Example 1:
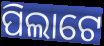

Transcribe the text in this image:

ପିଲାଟେ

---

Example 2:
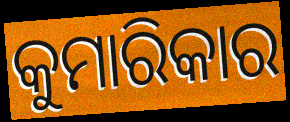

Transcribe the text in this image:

କୁମାରିକାର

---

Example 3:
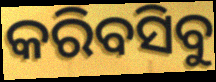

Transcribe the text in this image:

କରିବସିବୁ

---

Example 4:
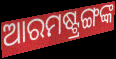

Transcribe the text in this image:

ଆରମଷ୍ଟ୍ରଙ୍ଗଙ୍କ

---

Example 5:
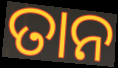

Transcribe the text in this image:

ତାନ